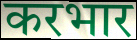
करभार